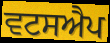
ਵਟਸਐਪ